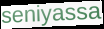
seniyassa